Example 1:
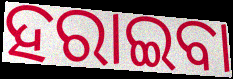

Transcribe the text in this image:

ହରାଇବା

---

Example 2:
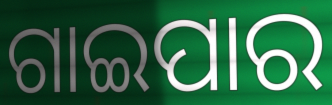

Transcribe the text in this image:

ଗାଇପାର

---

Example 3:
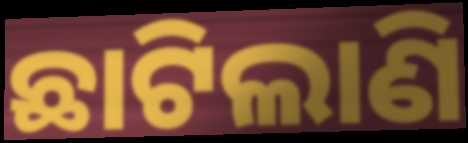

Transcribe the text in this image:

ଛାଟିଲାଣି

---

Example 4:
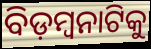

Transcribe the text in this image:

ବିଡ଼ମ୍ବନାଟିକୁ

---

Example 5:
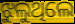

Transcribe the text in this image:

ଝୁଲୁଥିଲେ